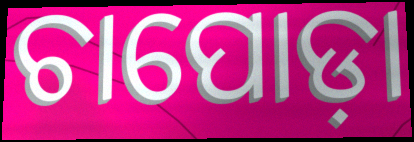
ଚାପୋଡ଼ା